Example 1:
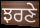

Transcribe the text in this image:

ਝਰਣੇ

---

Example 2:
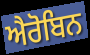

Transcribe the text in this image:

ਐਰੋਬਿਨ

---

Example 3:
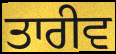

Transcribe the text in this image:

ਤਾਰੀਵ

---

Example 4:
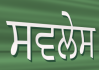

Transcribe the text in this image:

ਸਵਲੇਸ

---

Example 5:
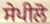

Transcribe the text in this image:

ਸੇਪੀਲੋ